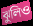
ঝুলিও